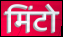
मिंटो